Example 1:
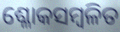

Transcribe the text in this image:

ଶ୍ଳୋକସମ୍ବଳିତ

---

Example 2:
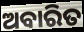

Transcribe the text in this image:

ଅବାରିତ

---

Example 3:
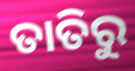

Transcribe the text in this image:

ତାତିରୁ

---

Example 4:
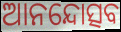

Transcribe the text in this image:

ଆନନ୍ଦୋତ୍ସବ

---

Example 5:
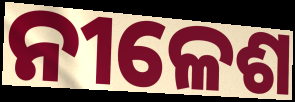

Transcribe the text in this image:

ନୀଳେଶ